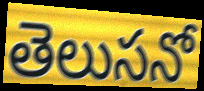
తెలుసనో